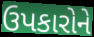
ઉપકારોને